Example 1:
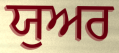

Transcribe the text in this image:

ਯੁਅਰ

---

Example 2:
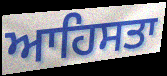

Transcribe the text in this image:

ਆਹਿਸਤਾ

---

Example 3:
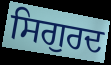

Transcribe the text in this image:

ਸਿਗੁਰਦ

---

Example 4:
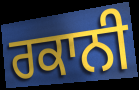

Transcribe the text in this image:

ਰਕਾਨੀ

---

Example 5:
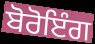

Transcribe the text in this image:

ਬੋਰੋਇੰਗ